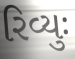
રિવ્યુઃ